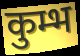
कुम्भ